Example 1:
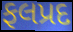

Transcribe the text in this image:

ફલપ્રદ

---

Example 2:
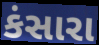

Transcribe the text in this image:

કંસારા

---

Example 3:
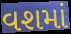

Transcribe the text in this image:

વશમાં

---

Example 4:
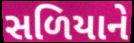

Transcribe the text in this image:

સળિયાને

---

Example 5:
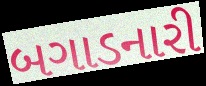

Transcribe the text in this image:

બગાડનારી